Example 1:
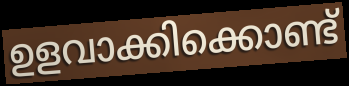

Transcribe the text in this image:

ഉളവാക്കിക്കൊണ്ട്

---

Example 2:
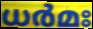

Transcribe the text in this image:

ധർമഃ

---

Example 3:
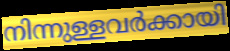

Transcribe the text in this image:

നിന്നുള്ളവർക്കായി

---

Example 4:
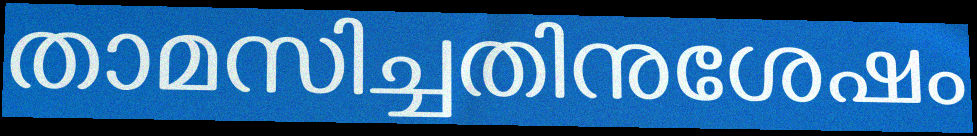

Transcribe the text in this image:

താമസിച്ചതിനുശേഷം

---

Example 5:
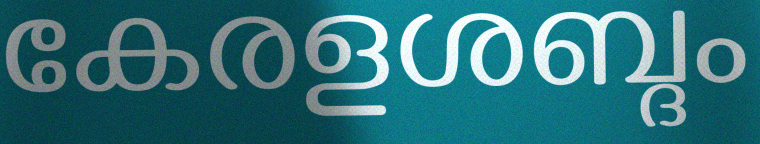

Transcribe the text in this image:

കേരളശബ്ദം